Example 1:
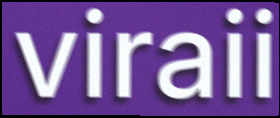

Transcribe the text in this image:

viraii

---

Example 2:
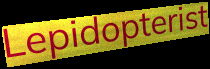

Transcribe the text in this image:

Lepidopterist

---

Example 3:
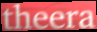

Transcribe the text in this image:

theera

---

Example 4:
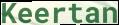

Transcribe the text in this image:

Keertan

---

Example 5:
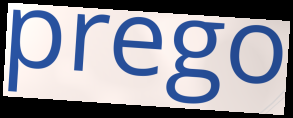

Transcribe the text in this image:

prego